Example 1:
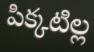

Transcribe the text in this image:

పిక్కటిల్ల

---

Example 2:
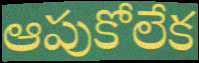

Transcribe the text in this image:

ఆపుకోలేక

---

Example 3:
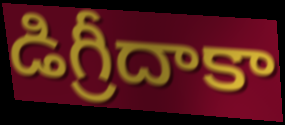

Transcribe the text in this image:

డిగ్రీదాకా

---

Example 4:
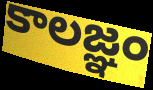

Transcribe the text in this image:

కాలజ్ఞం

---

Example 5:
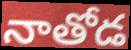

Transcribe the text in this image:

నాతోడ